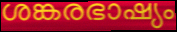
ശങ്കരഭാഷ്യം